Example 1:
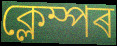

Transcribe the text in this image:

ক্লেম্পৰ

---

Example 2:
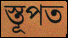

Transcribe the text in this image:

স্তূপত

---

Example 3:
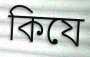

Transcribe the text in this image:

কিযে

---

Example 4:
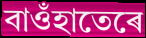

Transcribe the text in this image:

বাওঁহাতেৰে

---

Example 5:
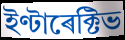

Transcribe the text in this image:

ইণ্টাৰেক্টিভ